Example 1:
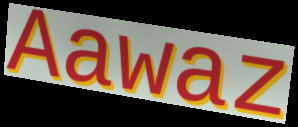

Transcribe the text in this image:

Aawaz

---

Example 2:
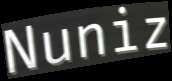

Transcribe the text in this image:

Nuniz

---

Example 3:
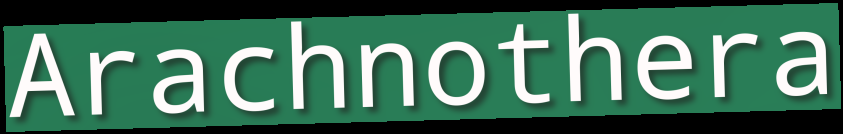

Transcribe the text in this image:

Arachnothera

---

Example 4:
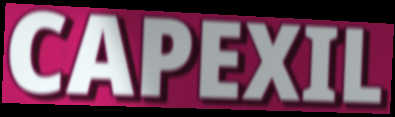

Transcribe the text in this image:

CAPEXIL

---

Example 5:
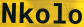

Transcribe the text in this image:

Nkolo